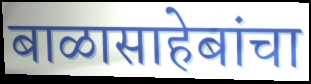
बाळासाहेबांचा